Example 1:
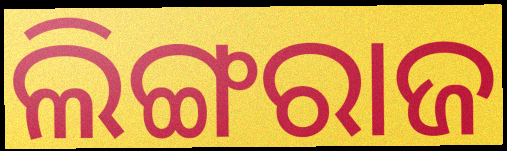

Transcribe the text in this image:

ଲିଙ୍ଗରାଜ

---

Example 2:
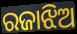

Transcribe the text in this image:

ରଜାଝିଅ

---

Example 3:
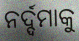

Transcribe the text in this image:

ନର୍ଦ୍ଦମାକୁ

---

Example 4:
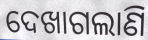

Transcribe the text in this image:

ଦେଖାଗଲାଣି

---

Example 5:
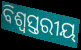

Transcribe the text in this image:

ବିଶ୍ବସ୍ତରୀୟ